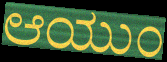
ಆಯುಂ